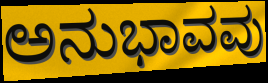
ಅನುಭಾವವು